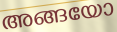
അങ്ങയോ